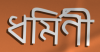
ধর্মিণী